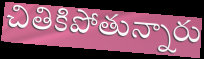
చితికిపోతున్నారు